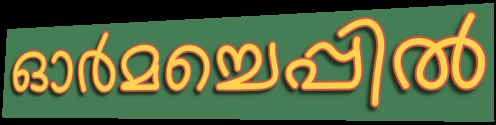
ഓർമച്ചെപ്പിൽ